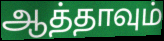
ஆத்தாவும்